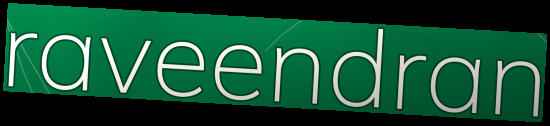
raveendran